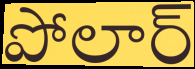
పోలార్